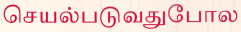
செயல்படுவதுபோல